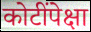
कोटींपेक्षा